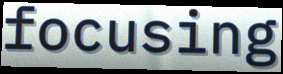
focusing